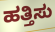
ಹತ್ತಿಸು